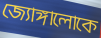
জ্যোঙ্গালোকে